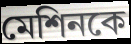
মেশিনকে